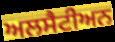
ਅਲਸੈਟੀਅਨ